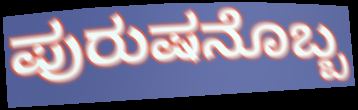
ಪುರುಷನೊಬ್ಬ